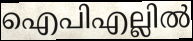
ഐപിഎല്ലിൽ